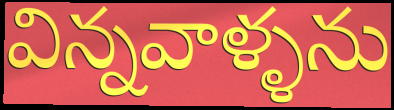
విన్నవాళ్ళను